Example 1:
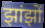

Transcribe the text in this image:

झांझों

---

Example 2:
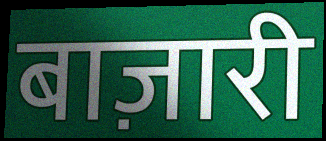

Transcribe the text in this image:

बाज़ारी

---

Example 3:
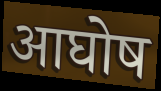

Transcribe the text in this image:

आघोष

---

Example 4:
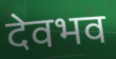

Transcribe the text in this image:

देवभव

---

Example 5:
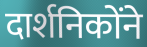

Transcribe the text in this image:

दार्शनिकोंने